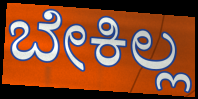
ಬೇಕಿಲ್ಲ